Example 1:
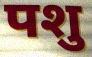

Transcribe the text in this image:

पशु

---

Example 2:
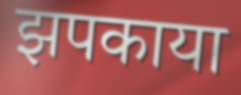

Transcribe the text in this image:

झपकाया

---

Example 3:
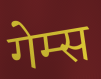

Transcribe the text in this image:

गेम्स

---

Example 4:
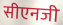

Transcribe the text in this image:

सीएनजी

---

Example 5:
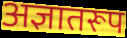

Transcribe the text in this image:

अज्ञातरूप